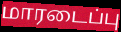
மாரடைப்பு